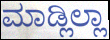
ಮಾಡ್ಲಿಲ್ಲಾ